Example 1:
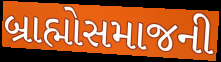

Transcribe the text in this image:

બ્રાહ્મોસમાજની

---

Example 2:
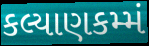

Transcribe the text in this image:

કલ્યાણકમ્મં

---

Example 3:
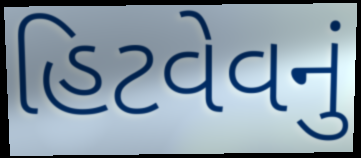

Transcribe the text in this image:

હિટવેવનું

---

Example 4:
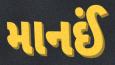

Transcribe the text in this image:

માનઈં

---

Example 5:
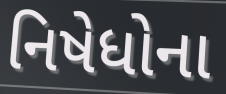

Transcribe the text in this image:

નિષેધોના